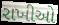
રાખીઓ